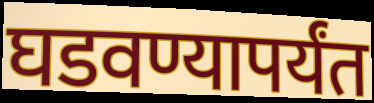
घडवण्यापर्यंत